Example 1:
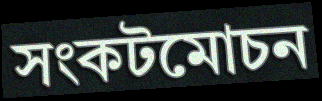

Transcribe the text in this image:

সংকটমোচন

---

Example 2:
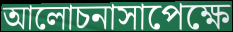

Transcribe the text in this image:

আলোচনাসাপেক্ষে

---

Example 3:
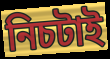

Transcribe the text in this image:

নিচটাই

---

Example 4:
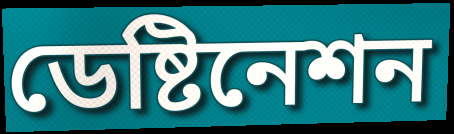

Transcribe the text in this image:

ডেষ্টিনেশন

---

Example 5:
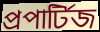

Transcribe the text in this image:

প্রপার্টিজ